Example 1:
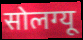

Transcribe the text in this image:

सोलग्यू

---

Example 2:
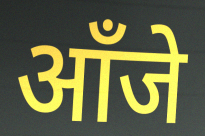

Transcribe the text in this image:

आँजे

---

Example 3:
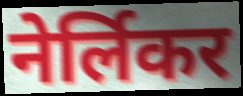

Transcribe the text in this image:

नेर्लिकर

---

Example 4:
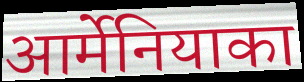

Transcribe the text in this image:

आर्मेनियाका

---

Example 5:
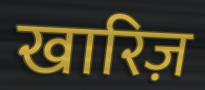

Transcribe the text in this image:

खारिज़